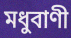
মধুবাণী